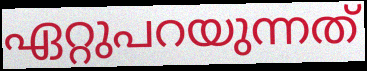
ഏറ്റുപറയുന്നത്